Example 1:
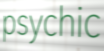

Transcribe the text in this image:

psychic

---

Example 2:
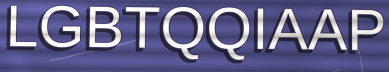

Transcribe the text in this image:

LGBTQQIAAP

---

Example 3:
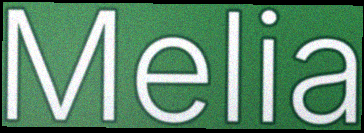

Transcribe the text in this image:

Melia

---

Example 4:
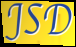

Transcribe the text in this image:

JSD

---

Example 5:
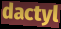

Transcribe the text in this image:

dactyl